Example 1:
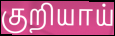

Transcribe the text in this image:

குறியாய்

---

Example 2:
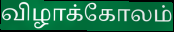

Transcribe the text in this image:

விழாக்கோலம்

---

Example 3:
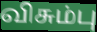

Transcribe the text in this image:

விசும்பு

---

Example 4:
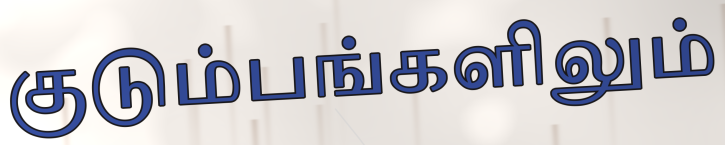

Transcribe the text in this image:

குடும்பங்களிலும்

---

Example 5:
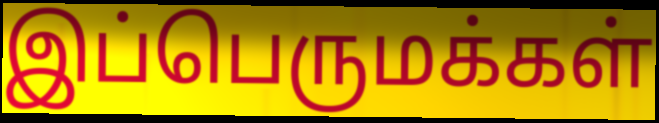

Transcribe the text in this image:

இப்பெருமக்கள்